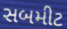
સબમીટ